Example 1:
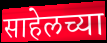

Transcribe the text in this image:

साहेलच्या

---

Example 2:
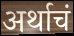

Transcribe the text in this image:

अर्थाचं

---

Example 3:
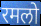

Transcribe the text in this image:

रमलो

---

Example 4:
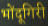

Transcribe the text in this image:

भोंदूगिरी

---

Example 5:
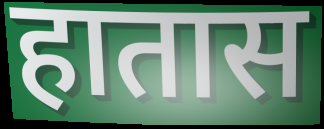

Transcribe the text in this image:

हातास